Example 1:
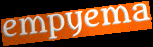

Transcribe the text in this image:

empyema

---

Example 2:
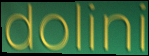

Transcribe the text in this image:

dolini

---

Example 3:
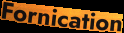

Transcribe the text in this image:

Fornication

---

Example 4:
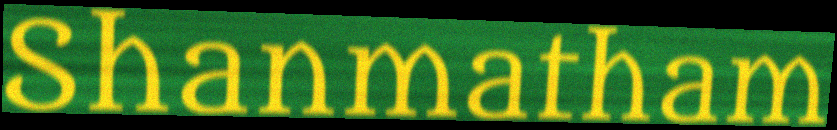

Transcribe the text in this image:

Shanmatham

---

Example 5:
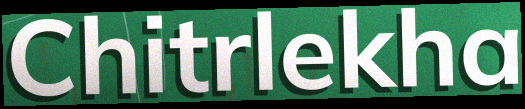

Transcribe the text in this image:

Chitrlekha